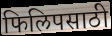
फिलिपसाठी